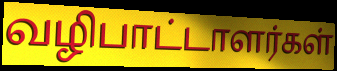
வழிபாட்டாளர்கள்